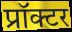
प्रॉक्टर